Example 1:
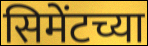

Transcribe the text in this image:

सिमेंटच्या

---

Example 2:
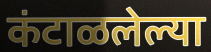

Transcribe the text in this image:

कंटाळलेल्या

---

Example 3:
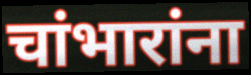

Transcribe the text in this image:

चांभारांना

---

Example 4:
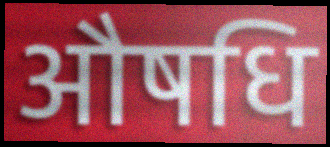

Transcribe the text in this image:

औषधि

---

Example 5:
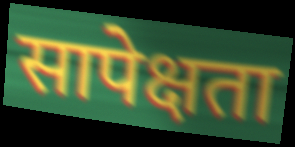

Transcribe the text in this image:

सापेक्षता